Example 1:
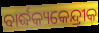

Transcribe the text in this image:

ବାର୍ଦ୍ଧକ୍ୟକେନ୍ଦ୍ରୀକ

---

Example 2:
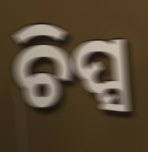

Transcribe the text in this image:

ଚିପ୍ସ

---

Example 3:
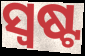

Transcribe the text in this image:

ସ୍ୱଷ୍ଟ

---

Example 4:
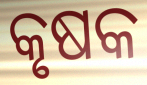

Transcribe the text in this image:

କୃଷକ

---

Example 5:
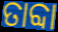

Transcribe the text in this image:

ତାବ୍ଦା